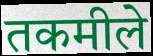
तकमीले